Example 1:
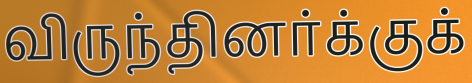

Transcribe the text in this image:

விருந்தினர்க்குக்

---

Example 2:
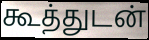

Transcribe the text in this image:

கூத்துடன்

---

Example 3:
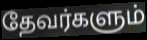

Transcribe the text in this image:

தேவர்களும்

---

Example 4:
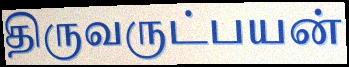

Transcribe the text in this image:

திருவருட்பயன்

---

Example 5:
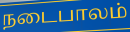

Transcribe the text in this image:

நடைபாலம்